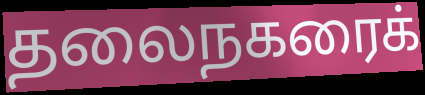
தலைநகரைக்